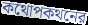
কথোপকথনের